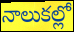
నాలుకల్లో